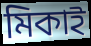
মিকাই